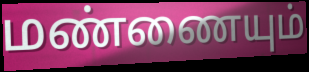
மண்ணையும்